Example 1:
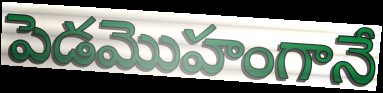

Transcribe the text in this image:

పెడమొహంగానే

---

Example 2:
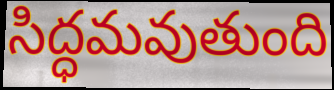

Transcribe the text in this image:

సిద్ధమవుతుంది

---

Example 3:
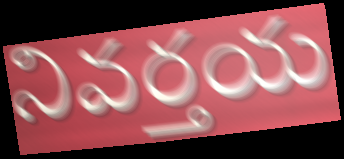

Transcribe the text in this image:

నివర్తయ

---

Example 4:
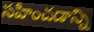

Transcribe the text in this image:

సహించడాన్ని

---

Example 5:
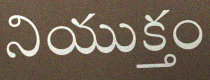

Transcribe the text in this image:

నియుక్తం